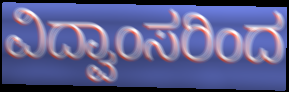
ವಿದ್ವಾಂಸರಿಂದ